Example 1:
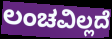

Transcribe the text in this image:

ಲಂಚವಿಲ್ಲದೆ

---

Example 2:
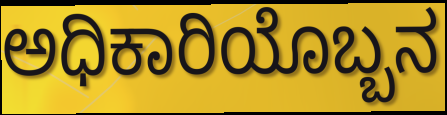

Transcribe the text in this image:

ಅಧಿಕಾರಿಯೊಬ್ಬನ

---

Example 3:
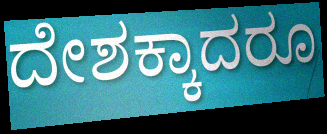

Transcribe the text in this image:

ದೇಶಕ್ಕಾದರೂ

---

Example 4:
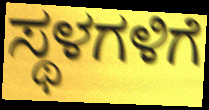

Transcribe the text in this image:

ಸ್ಥಳಗಳಿಗೆ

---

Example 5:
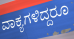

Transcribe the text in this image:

ವಾಕ್ಯಗಳಿದ್ದರೂ